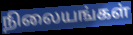
நிலையங்கள்